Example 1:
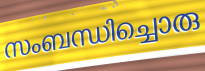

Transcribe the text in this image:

സംബന്ധിച്ചൊരു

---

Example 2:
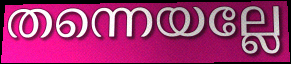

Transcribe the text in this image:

തന്നെയല്ലേ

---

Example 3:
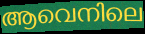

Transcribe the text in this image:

ആവെനിലെ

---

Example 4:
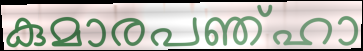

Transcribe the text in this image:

കുമാരപഞ്ഹാ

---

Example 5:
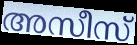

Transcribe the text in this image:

അസീസ്